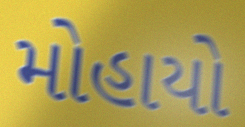
મોહાયો